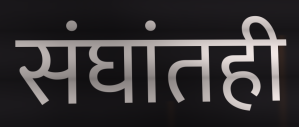
संघांतही